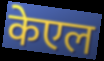
केएल